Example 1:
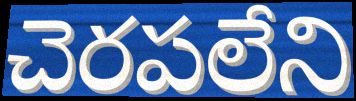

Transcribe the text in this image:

చెరపలేని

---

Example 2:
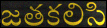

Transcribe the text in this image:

జతకలిసి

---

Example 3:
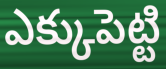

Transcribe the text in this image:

ఎక్కుపెట్టి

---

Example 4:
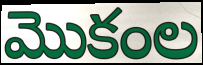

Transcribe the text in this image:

మొకంల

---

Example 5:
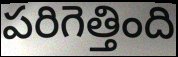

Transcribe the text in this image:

పరిగెత్తింది